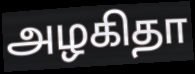
அழகிதா